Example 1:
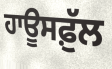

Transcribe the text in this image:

ਹਾਊਸਫ਼ੁੱਲ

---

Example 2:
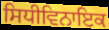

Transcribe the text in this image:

ਸਿਧੀਵਿਨਾਇਕ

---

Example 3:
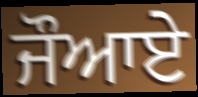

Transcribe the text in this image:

ਜੌਆਏ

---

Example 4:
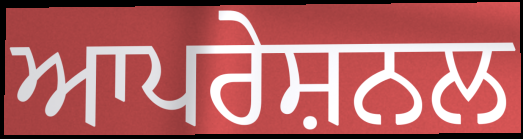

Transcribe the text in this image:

ਆਪਰੇਸ਼ਨਲ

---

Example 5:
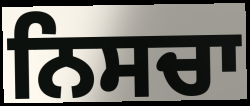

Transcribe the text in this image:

ਨਿਸਚਾ